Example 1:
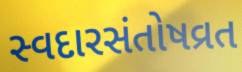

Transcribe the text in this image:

સ્વદારસંતોષવ્રત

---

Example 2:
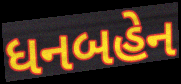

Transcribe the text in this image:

ધનબહેન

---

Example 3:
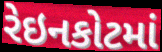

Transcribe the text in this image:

રેઇનકોટમાં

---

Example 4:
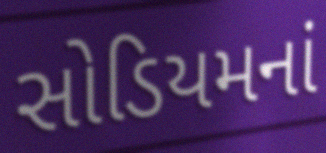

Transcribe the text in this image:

સોડિયમનાં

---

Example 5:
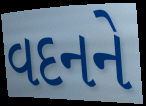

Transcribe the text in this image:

વદનને